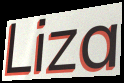
Liza